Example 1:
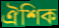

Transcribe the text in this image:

ঐশিক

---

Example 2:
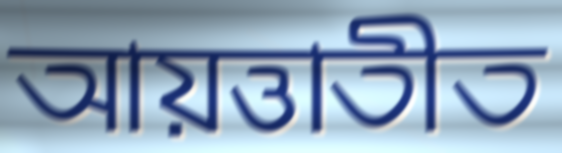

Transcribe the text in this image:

আয়ত্তাতীত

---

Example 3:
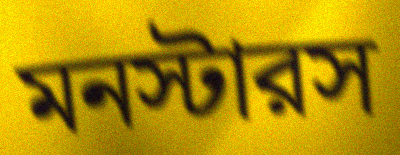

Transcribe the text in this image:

মনস্টারস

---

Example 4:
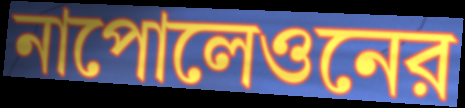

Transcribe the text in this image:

নাপোলেওনের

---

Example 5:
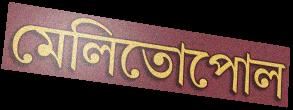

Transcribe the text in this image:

মেলিতোপোল